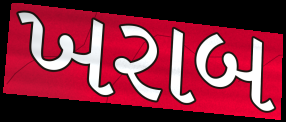
ખરાબ